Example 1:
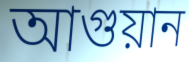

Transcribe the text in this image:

আগুয়ান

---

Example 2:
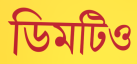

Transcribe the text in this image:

ডিমটিও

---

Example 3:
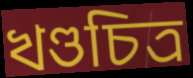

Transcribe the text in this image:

খণ্ডচিত্র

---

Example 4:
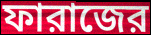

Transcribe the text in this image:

ফারাজের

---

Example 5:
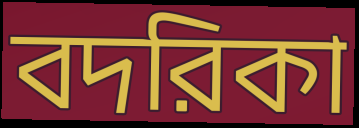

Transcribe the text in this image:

বদরিকা